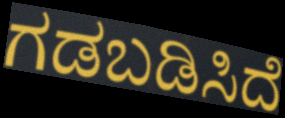
ಗಡಬಡಿಸಿದೆ